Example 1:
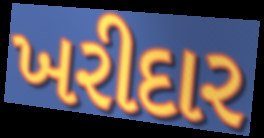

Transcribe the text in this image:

ખરીદાર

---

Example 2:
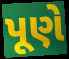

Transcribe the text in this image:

પૂણે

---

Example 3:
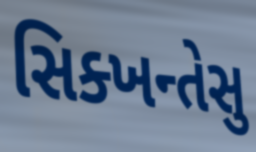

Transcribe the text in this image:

સિક્ખન્તેસુ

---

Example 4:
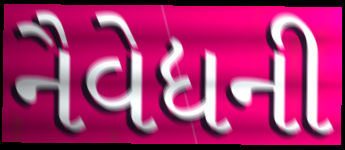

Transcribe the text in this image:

નૈવેદ્યની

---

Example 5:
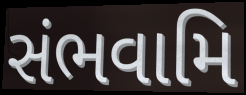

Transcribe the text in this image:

સંભવામિ